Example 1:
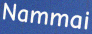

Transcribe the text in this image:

Nammai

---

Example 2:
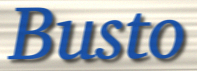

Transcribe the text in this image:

Busto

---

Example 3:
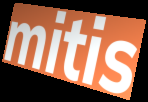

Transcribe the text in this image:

mitis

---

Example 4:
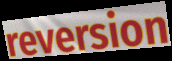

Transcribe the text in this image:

reversion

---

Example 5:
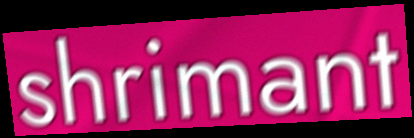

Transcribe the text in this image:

shrimant